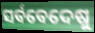
ସର୍ବବେଦେଷୁ